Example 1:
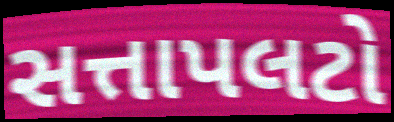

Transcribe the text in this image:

સત્તાપલટો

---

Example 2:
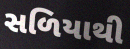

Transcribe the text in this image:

સળિયાથી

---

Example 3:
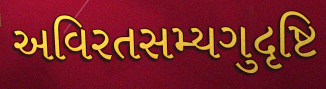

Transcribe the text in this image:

અવિરતસમ્યગુદૃષ્ટિ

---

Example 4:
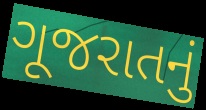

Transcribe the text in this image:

ગૂજરાતનું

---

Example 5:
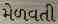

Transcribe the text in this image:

મેળવતી